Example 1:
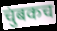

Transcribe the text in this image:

चुंबकच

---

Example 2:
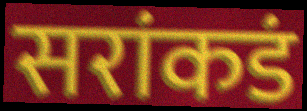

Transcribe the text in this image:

सरांकडं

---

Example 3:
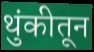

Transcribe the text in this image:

थुंकीतून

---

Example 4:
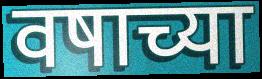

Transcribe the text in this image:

वषाच्या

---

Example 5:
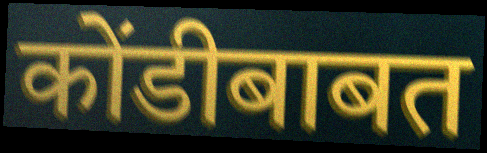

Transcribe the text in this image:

कोंडीबाबत